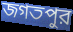
জগতপুর